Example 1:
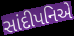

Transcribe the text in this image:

સાંદીપનિએ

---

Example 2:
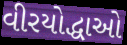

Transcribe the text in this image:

વીરયોદ્ધાઓ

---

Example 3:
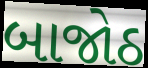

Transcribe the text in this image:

બાજોઠ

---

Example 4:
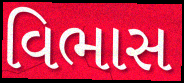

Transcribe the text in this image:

વિભાસ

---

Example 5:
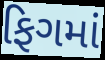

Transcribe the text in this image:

ફિગમાં